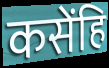
कसेंहि